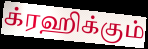
க்ரஹிக்கும்